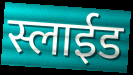
स्लाईड